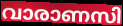
വാരാണസി